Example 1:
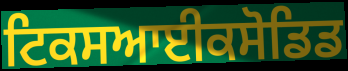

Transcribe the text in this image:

ਟਿਕਸਆਈਕਸੋਡਿਡ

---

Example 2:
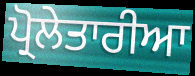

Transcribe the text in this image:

ਪ੍ਰੋਲੇਤਾਰੀਆ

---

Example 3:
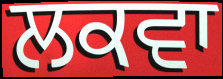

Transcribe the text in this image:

ਲਕਵਾ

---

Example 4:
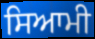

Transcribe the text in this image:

ਸਿਆਮੀ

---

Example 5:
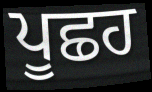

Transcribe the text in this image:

ਪੂਛਹ